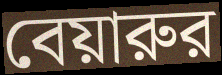
বেয়ারুর